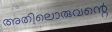
അതിലൊരുവന്റെ